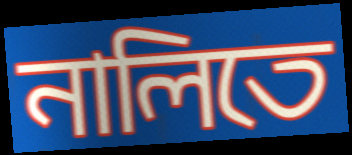
নালিতে